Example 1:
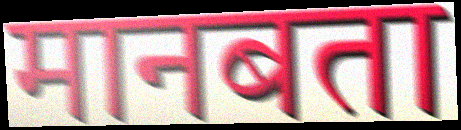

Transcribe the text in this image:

मानबता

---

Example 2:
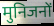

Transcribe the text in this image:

मुनिजनों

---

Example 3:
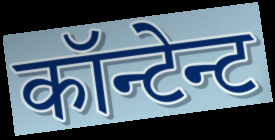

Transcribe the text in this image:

कॉन्टेन्ट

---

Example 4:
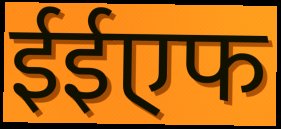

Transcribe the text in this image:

ईईएफ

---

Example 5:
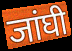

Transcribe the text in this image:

जांघी